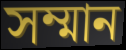
সম্মান